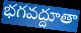
భగవద్దూతా